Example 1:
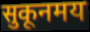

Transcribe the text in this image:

सुकूनमय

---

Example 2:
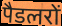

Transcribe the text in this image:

पैडलरों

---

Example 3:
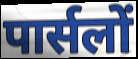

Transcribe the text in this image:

पार्सलों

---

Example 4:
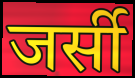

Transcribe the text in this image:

जर्सी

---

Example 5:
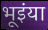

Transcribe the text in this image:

भूइंया